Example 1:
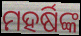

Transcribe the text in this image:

ମହର୍ଷିଙ୍କ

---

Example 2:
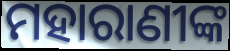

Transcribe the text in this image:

ମହାରାଣୀଙ୍କ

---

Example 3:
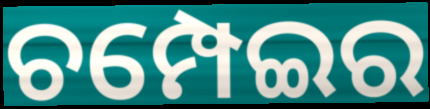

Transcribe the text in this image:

ଚମ୍ପେଇର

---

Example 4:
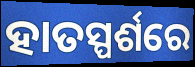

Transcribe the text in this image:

ହାତସ୍ପର୍ଶରେ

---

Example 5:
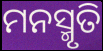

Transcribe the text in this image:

ମନସ୍ମୃତି